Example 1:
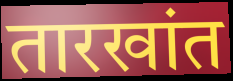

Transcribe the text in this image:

तारखांत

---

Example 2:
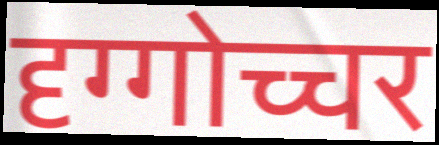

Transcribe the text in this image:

दृग्गोच्चर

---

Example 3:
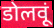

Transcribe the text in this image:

डोलवूं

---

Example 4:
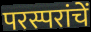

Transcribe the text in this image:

परस्परांचें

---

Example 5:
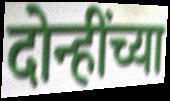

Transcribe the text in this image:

दोन्हींच्या